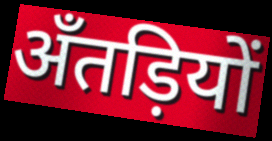
अँतड़ियों